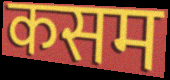
कसम